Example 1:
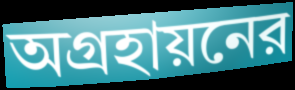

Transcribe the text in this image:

অগ্রহায়নের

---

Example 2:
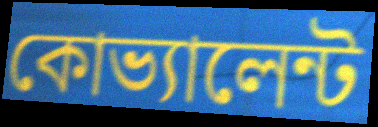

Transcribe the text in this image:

কোভ্যালেন্ট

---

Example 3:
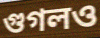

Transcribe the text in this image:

গুগলও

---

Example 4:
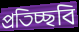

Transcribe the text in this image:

প্রতিচ্ছবি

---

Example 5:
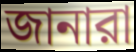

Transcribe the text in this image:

জানারা